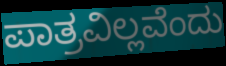
ಪಾತ್ರವಿಲ್ಲವೆಂದು